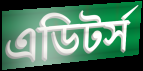
এডিটর্স